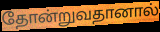
தோன்றுவதானால்